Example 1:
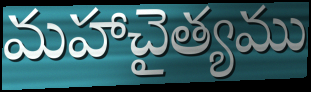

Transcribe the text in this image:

మహాచైత్యము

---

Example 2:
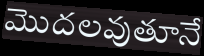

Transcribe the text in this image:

మొదలవుతూనే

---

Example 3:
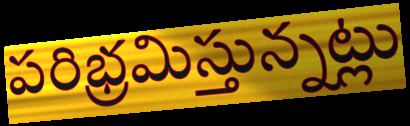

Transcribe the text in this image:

పరిభ్రమిస్తున్నట్లు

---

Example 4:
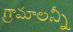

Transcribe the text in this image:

గ్రామాలన్నీ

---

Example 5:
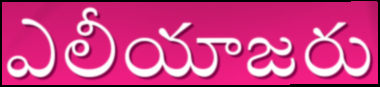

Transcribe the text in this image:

ఎలీయాజరు